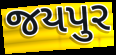
જયપુર